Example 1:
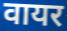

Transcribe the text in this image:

वायर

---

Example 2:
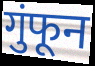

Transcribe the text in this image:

गुंफून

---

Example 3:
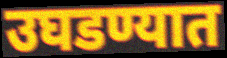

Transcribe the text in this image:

उघडण्यात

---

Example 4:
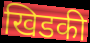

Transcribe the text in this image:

खिडकी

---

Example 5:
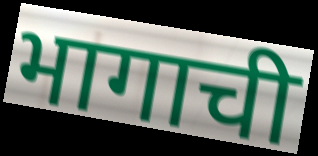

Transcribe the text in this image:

भागाची